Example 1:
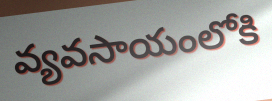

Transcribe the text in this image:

వ్యవసాయంలోకి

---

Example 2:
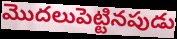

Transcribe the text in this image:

మొదలుపెట్టినపుడు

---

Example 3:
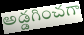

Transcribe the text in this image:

అడ్డగించగా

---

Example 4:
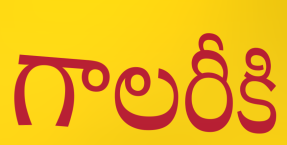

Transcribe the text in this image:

గాలరీకి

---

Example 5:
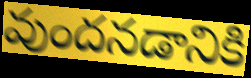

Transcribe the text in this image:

వుందనడానికి